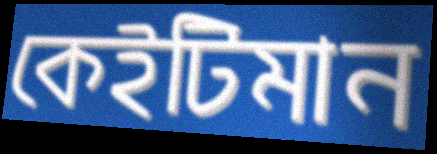
কেইটিমান